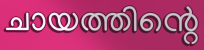
ചായത്തിന്റെ